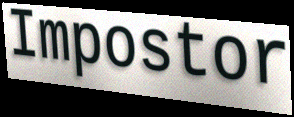
Impostor